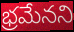
భ్రమేనని